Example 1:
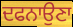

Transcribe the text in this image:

ਦਫਨਾਉਣਾ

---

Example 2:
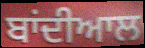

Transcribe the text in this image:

ਬਾਂਦੀਆਲ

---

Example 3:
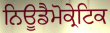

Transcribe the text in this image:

ਨਿਊਡੈਮੋਕ੍ਰੇਟਿਕ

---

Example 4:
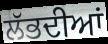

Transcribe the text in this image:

ਲੱਭਦੀਆਂ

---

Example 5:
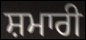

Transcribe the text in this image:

ਸ਼ਮਾਰੀ